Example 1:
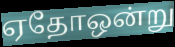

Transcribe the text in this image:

ஏதோஒன்று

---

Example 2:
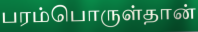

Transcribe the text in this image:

பரம்பொருள்தான்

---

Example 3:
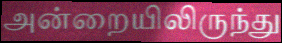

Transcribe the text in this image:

அன்றையிலிருந்து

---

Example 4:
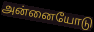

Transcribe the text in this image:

அன்னையோடு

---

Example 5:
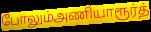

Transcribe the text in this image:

போலும்அணியாரூர்த்